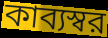
কাব্যস্বর